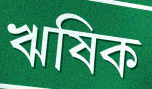
ঋষিক